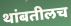
थांबतीलच